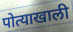
पोत्याखाली